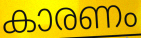
കാരണം